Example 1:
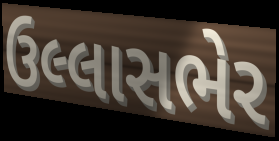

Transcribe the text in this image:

ઉલ્લાસભેર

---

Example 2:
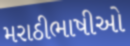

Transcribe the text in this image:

મરાઠીભાષીઓ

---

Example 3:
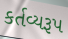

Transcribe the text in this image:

કર્તવ્યરૂપ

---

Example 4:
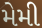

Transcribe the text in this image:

મેમી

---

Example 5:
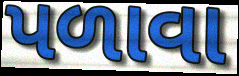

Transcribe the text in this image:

પળાવા